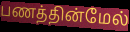
பணத்தின்மேல்